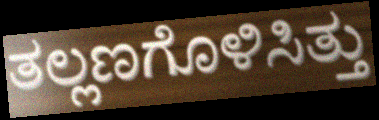
ತಲ್ಲಣಗೊಳಿಸಿತ್ತು